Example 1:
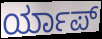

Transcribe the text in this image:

ರ್ಯಾಪ್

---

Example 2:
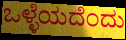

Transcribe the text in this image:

ಒಳ್ಳೆಯದೆಂದು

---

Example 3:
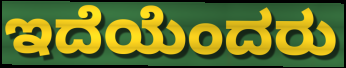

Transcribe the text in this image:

ಇದೆಯೆಂದರು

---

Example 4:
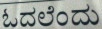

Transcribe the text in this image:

ಓದಲೆಂದು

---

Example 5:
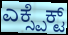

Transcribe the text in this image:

ಎಕ್ಸ್ಪೆಕ್ಟ್